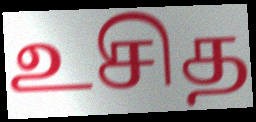
உசித